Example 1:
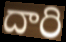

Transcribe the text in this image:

దారి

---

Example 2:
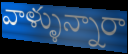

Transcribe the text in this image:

వాళ్ళున్నారా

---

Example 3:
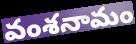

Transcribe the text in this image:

వంశనామం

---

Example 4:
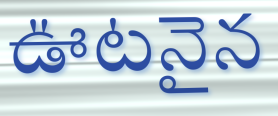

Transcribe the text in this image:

ఊటనైన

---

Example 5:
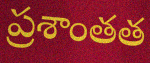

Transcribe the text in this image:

ప్రశాంతత